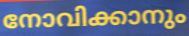
നോവിക്കാനും